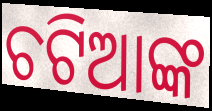
ଚଟିଆଙ୍କ